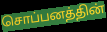
சொப்பனத்தின்